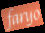
faryo